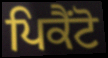
ਪਿਕੈਂਟੋ